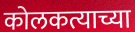
कोलकत्याच्या